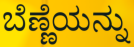
ಬೆಣ್ಣೆಯನ್ನು